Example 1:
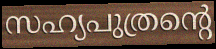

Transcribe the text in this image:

സഹ്യപുത്രന്റെ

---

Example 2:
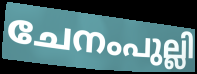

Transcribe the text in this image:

ചേനംപുല്ലി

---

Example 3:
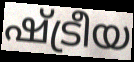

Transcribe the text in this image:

ഷ്ട്രീയ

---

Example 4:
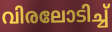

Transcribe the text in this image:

വിരലോടിച്ച്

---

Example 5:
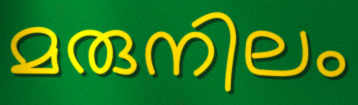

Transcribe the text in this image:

മരുനിലം